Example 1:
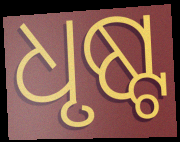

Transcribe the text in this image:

ଧୃଷ୍ଟ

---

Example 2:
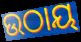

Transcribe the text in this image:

ଉଠାୟ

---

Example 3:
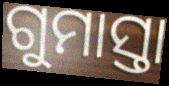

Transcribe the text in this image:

ଗୁମାସ୍ତା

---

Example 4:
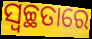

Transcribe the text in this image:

ସ୍ବଚ୍ଛତାରେ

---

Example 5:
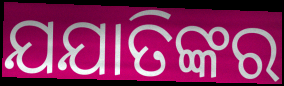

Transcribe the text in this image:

ଯଯାତିଙ୍କର